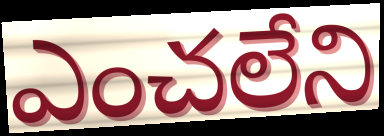
ఎంచలేని